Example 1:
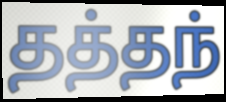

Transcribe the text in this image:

தத்தந்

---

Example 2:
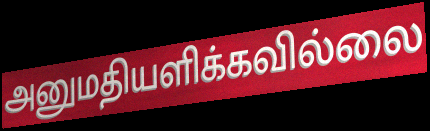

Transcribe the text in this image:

அனுமதியளிக்கவில்லை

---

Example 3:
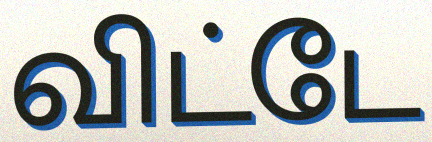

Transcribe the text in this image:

விட்டே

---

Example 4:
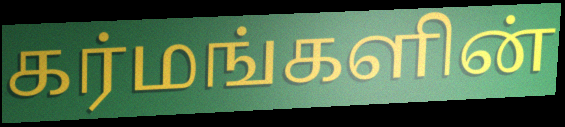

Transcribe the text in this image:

கர்மங்களின்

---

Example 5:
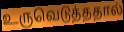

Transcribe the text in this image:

உருவெடுத்ததால்